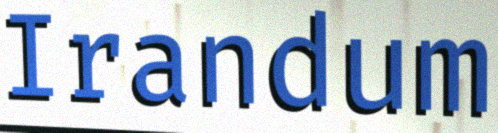
Irandum